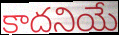
కాదనియే